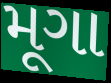
મૂગા